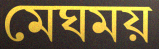
মেঘময়